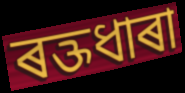
ৰক্তধাৰা